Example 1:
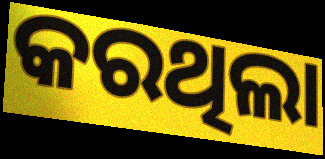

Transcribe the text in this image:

କରଥିଲା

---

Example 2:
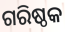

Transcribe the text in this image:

ଗରିଷ୍ଠକ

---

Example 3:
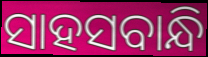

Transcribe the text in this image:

ସାହସବାନ୍ଧି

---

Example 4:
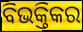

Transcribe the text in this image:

ବିଭକ୍ତିକର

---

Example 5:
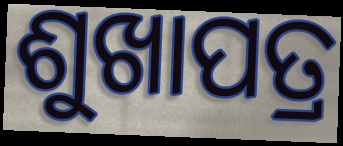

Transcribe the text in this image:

ଶୁଖାପତ୍ର